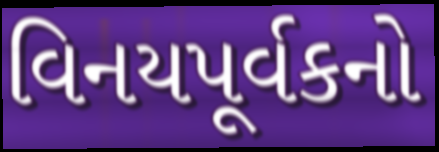
વિનયપૂર્વકનો